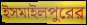
ইসমাইলপুরের